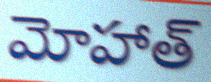
మోహాత్